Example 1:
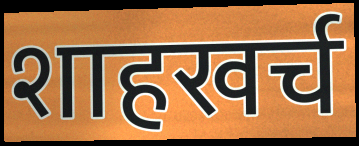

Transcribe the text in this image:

शाहखर्च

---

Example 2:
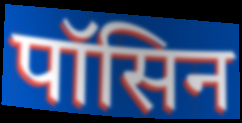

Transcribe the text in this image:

पॉसिन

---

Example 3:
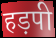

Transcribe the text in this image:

हड़पी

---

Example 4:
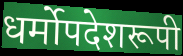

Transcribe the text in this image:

धर्मोपदेशरूपी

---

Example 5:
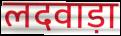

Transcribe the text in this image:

लदवाड़ा